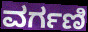
ವರ್ಗಣಿ